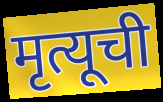
मृत्यूची